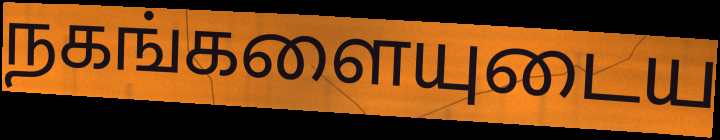
நகங்களையுடைய